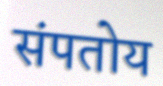
संपतोय